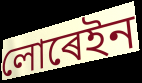
লোৰেইন